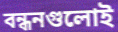
বন্ধনগুলোই